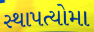
સ્થાપત્યોમા